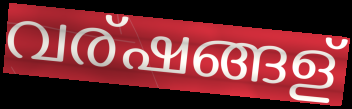
വര്ഷങ്ങള്